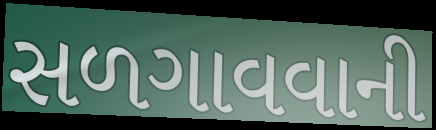
સળગાવવાની